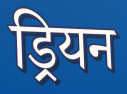
ड्रियन